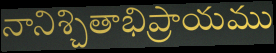
నానిశ్చితాభిప్రాయము